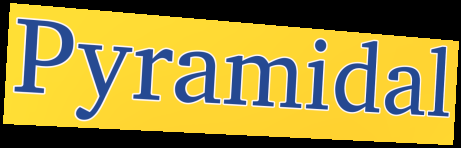
Pyramidal